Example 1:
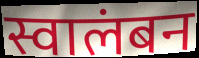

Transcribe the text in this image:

स्वालंबन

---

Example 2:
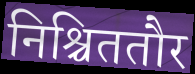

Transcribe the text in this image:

निश्चिततौर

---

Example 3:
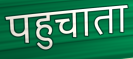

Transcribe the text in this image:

पहुचाता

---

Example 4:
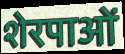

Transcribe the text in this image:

शेरपाओं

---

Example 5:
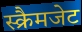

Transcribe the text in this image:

स्‍क्रैमजेट